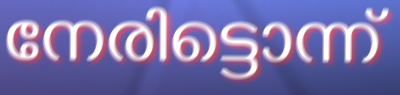
നേരിട്ടൊന്ന്